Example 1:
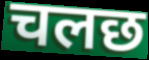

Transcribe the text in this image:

चलछ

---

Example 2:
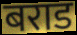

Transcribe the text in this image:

बराड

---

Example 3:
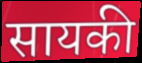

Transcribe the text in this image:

सायकी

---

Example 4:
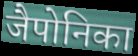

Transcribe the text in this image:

जैपोनिका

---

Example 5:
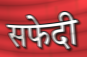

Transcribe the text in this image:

सफेदी